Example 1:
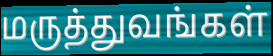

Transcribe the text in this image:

மருத்துவங்கள்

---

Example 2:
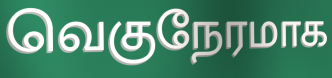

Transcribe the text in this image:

வெகுநேரமாக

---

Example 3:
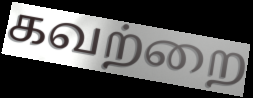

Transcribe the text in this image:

கவற்றை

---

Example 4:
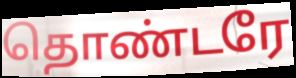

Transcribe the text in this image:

தொண்டரே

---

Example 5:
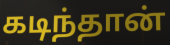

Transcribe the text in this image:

கடிந்தான்